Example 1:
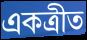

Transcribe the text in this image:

একত্ৰীত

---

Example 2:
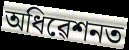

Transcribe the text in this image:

অধিৱেশনত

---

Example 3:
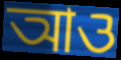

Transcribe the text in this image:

আও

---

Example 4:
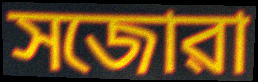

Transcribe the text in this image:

সজোৱা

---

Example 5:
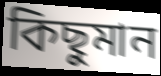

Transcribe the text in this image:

কিছুমান